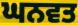
ਘਨਵਤ